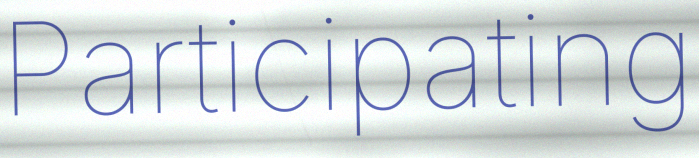
Participating